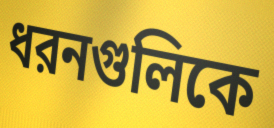
ধরনগুলিকে